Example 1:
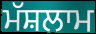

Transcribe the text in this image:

ਮੱਸ਼ਲਾਮ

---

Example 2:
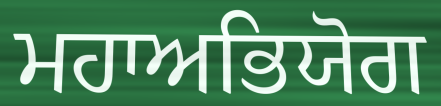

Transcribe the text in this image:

ਮਹਾਅਭਿਯੋਗ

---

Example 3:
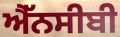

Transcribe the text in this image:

ਐੱਨਸੀਬੀ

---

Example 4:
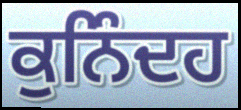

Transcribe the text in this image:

ਕੁਨਿੰਦਹ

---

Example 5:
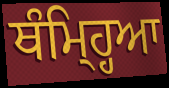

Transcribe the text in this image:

ਥੰਮ੍ਹ੍ਹਿਆ